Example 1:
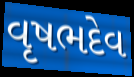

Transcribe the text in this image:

વૃષભદેવ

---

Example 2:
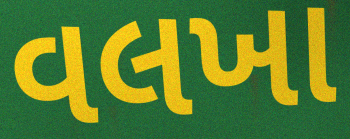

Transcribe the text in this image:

વલખા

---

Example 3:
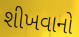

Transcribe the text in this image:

શીખવાનો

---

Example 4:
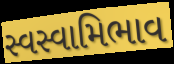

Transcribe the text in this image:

સ્વસ્વામિભાવ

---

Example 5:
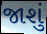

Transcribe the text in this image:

જાશું